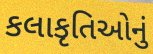
કલાકૃતિઓનું